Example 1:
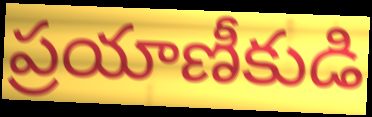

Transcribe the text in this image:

ప్రయాణీకుడి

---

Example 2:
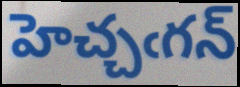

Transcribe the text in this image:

హెచ్చఁగన్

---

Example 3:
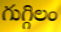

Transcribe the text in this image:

గుగ్గిలం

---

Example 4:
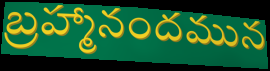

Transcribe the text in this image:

బ్రహ్మానందమున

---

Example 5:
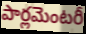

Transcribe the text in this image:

పార్లమెంటరీ